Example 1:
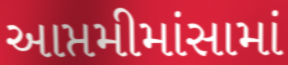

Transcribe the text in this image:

આપ્તમીમાંસામાં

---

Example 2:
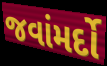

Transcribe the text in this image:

જવાંમર્દો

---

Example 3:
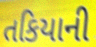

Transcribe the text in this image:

તકિયાની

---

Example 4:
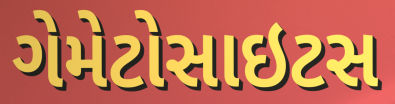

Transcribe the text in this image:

ગેમેટોસાઇટસ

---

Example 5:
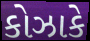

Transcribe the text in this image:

કોઝાકે